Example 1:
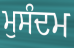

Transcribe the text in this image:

ਮੁਸੰਦਮ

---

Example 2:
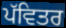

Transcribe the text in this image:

ਪੱਵਿਤਰ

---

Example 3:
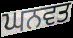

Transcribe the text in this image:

ਘਨਵਤ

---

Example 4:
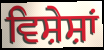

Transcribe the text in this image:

ਵਿਸ਼ੇਸ਼ਾਂ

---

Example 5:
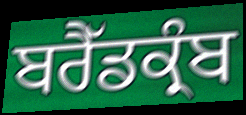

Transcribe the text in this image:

ਬਰੈੱਡਕ੍ਰੰਬ